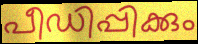
പീഡിപ്പിക്കും